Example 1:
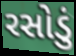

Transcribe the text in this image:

રસોડું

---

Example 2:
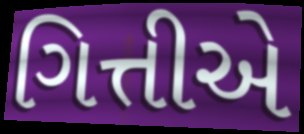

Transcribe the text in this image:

ગિત્તીએ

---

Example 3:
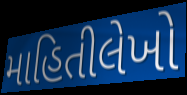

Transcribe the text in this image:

માહિતીલેખો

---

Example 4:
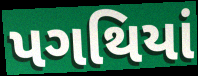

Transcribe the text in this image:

પગથિયાં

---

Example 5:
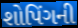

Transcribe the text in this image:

શોપિંગની